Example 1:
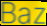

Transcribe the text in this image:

Baz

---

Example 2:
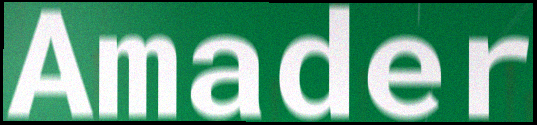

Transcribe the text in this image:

Amader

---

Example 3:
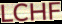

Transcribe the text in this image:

LCHF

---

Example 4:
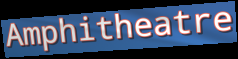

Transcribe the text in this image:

Amphitheatre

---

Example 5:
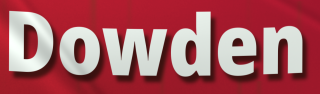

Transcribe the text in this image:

Dowden